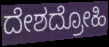
ದೇಶದ್ರೋಹಿ